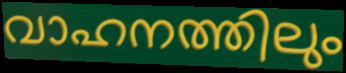
വാഹനത്തിലും